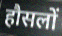
हौसलों